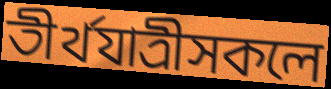
তীৰ্থযাত্ৰীসকলে